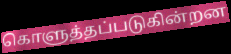
கொளுத்தப்படுகின்றன